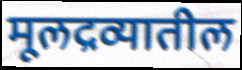
मूलद्रव्यातील